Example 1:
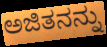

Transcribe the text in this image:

ಅಜಿತನನ್ನು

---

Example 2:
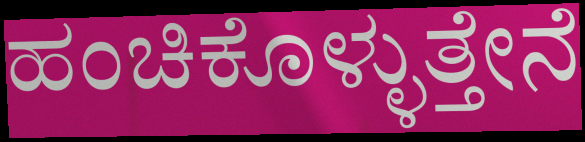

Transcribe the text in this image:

ಹಂಚಿಕೊಳ್ಳುತ್ತೇನೆ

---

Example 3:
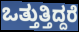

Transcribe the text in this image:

ಒತ್ತುತ್ತಿದ್ದರೆ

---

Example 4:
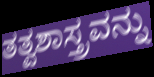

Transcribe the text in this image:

ತತ್ವಶಾಸ್ತ್ರವನ್ನು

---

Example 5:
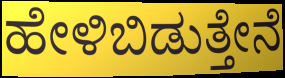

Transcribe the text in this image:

ಹೇಳಿಬಿಡುತ್ತೇನೆ